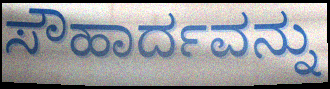
ಸೌಹಾರ್ದವನ್ನು